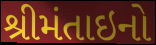
શ્રીમંતાઇનો